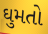
ઘુમતો